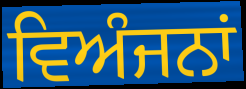
ਵਿਅੰਜਨਾਂ